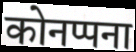
कोनप्पना